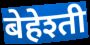
बेहेश्ती